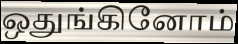
ஒதுங்கினோம்